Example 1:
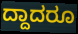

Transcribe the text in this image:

ದ್ದಾದರೂ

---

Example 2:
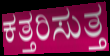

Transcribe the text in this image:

ಕತ್ತರಿಸುತ್ತ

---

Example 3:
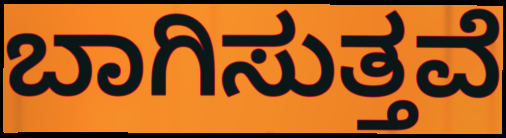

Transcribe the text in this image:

ಬಾಗಿಸುತ್ತವೆ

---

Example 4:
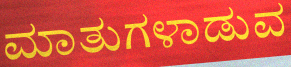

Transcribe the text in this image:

ಮಾತುಗಳಾಡುವ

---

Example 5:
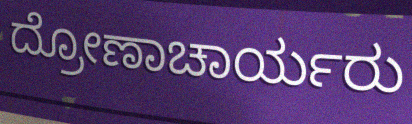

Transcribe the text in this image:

ದ್ರೋಣಾಚಾರ್ಯರು